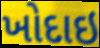
ખોદાઇ